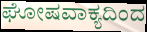
ಘೋಷವಾಕ್ಯದಿಂದ